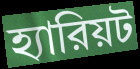
হ্যারিয়ট